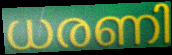
ധരണി